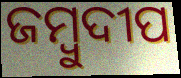
ଜମ୍ବୁଦୀପ